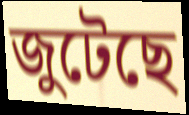
জুটেছে